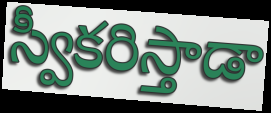
స్వీకరిస్తాడా